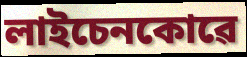
লাইচেনকোৱে